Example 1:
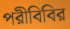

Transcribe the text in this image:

পরীবিবির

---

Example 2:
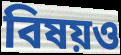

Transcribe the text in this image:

বিষয়ও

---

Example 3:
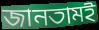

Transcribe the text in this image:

জানতামই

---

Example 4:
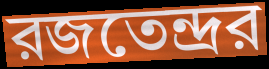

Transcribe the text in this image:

রজতেন্দ্রর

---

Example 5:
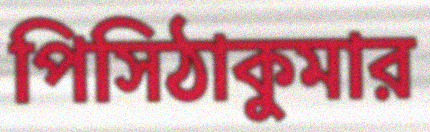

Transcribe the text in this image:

পিসিঠাকুমার